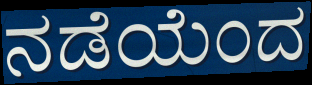
ನಡೆಯೆಂದ